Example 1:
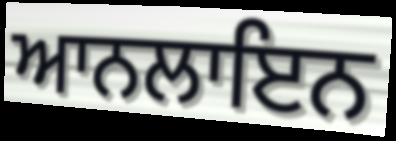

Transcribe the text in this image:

ਆਨਲਾਇਨ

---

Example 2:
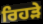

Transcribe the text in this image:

ਰਿਹੜੇ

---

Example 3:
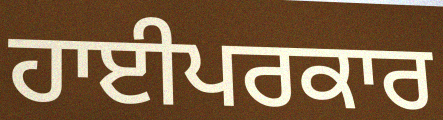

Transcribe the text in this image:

ਹਾਈਪਰਕਾਰ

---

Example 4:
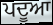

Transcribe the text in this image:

ਪਦੂਆ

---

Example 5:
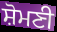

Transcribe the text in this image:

ਸ਼ੋਮਣੀ